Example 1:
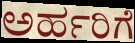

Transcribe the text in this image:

ಅರ್ಹರಿಗೆ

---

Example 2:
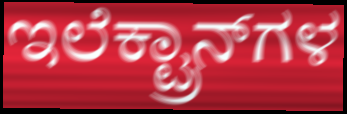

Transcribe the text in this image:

ಇಲೆಕ್ಟ್ರಾನ್‍ಗಳ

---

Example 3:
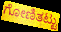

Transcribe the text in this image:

ಗೋಣಿತಟ್ಟು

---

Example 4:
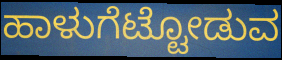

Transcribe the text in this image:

ಹಾಳುಗೆಟ್ಟೋಡುವ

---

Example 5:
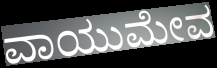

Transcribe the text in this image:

ವಾಯುಮೇವ